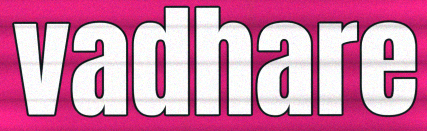
vadhare